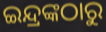
ଇନ୍ଦ୍ରଙ୍କଠାରୁ